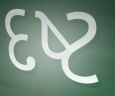
દષ્ટ